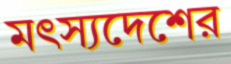
মৎস্যদেশের